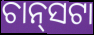
ଚାନ୍‌ସଟା